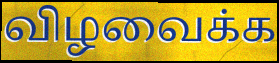
விழவைக்க